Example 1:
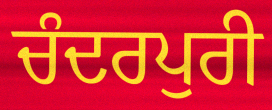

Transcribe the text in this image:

ਚੰਦਰਪੁਰੀ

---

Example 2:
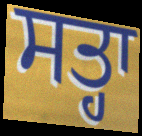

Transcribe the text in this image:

ਸਤ੍ਹਾ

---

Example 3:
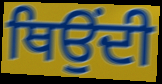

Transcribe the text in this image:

ਥਿਉਂਦੀ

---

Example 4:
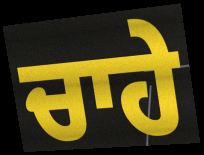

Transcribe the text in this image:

ਚਾਹੇ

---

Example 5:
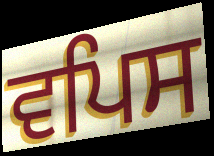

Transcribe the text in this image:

ਵਪਿਸ